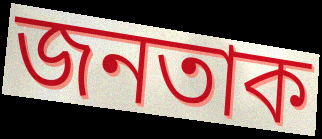
জনতাক